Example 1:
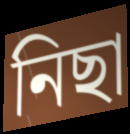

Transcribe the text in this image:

নিছা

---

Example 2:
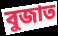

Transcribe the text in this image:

বুজাত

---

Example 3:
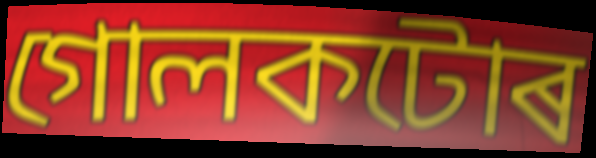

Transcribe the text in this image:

গোলকটোৰ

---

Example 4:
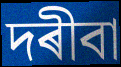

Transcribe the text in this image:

দৰীবা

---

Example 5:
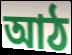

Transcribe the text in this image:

আঠ